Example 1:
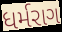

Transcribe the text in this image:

ધર્મરાગ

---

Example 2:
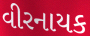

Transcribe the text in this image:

વીરનાયક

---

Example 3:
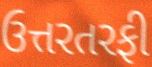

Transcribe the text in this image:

ઉત્તરતરફી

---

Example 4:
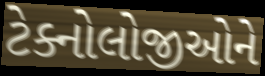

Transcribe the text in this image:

ટેક્નોલોજીઓને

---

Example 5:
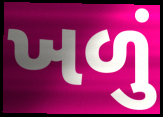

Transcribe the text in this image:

ખળું